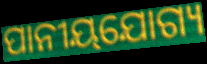
ପାନୀୟଯୋଗ୍ୟ